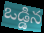
ఒడ్డిన